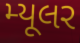
મ્યૂલર